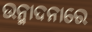
ଉନ୍ମାଦନାରେ